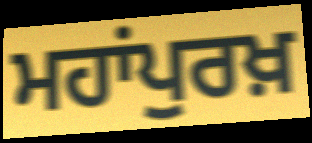
ਮਹਾਂਪੁਰਖ਼